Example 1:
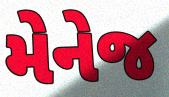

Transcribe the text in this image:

મેનેજ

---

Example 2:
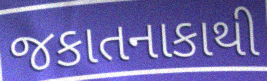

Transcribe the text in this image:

જકાતનાકાથી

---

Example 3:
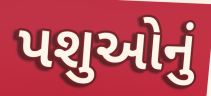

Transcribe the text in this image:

પશુઓનું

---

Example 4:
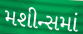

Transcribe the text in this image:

મશીન્સમાં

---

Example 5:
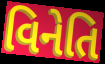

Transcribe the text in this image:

વિનેતિ